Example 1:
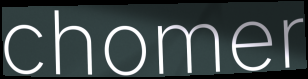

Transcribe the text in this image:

chomer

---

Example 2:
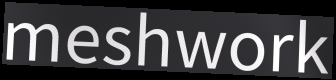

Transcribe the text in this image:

meshwork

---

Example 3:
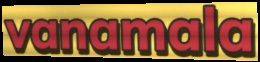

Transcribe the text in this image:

vanamala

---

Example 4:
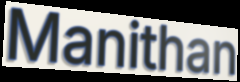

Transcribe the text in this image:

Manithan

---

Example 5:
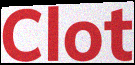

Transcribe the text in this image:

Clot